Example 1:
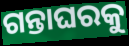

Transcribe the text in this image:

ଗନ୍ତାଘରକୁ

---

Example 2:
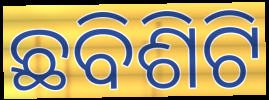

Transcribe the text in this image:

ଛବିଶିଟି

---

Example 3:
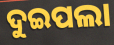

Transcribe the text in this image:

ଦୁଇପଲା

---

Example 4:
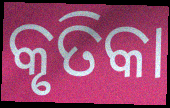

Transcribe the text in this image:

କୃତିକା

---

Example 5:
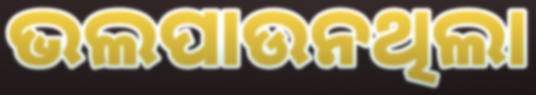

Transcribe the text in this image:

ଭଲପାଉନଥିଲା